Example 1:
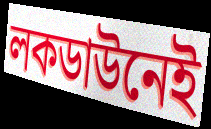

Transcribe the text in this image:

লকডাউনেই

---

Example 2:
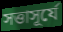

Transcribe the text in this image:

সত্তাসূর্যে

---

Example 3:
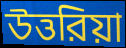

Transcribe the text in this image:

উত্তরিয়া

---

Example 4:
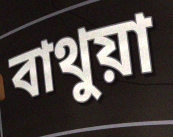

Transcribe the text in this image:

বাথুয়া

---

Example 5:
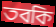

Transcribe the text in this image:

তবকি